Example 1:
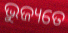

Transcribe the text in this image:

ଭୁଜ୍ୟତେ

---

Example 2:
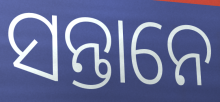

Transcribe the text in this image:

ସନ୍ତାନେ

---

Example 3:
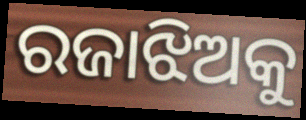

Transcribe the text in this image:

ରଜାଝିଅକୁ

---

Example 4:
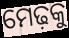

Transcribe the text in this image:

ମେଢ଼କୁ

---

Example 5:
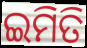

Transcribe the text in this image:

ଇମିତି